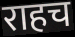
राहच